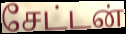
சேட்டன்